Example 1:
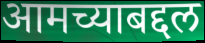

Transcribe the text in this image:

आमच्याबद्दल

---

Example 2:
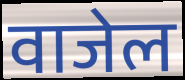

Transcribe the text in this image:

वाजेल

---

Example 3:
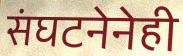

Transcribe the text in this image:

संघटनेनेही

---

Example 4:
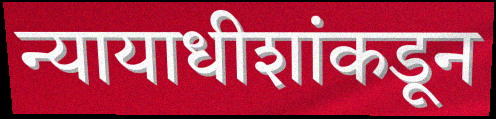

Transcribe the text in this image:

न्यायाधीशांकडून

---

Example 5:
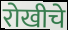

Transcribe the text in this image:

रोखीचे